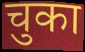
चुका